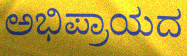
ಅಭಿಪ್ರಾಯದ